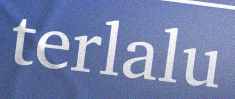
terlalu